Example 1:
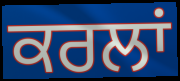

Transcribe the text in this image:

ਕਰਲਾਂ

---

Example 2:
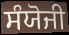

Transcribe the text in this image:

ਸੰਯੋਜੀ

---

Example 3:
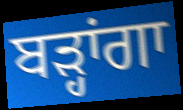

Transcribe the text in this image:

ਬੜ੍ਹਾਂਗਾ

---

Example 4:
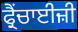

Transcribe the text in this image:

ਫ੍ਰੈਂਚਾਈਜ਼ੀ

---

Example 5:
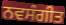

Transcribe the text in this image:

ਨਵਸੰਗੀਤ